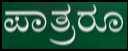
ಪಾತ್ರರೂ